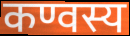
कण्वस्य